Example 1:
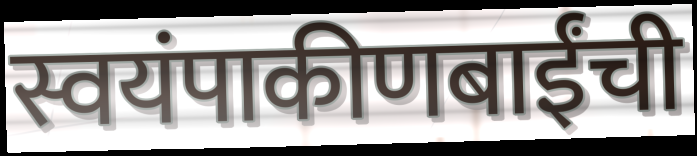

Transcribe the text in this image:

स्वयंपाकीणबाईंची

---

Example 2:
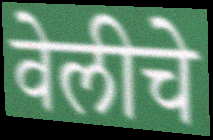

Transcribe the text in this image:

वेलीचे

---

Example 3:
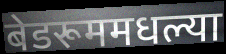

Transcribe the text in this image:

बेडरूममधल्या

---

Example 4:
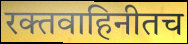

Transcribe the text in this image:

रक्तवाहिनीतच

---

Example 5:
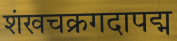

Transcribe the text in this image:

शंखचक्रगदापद्म